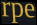
rpe